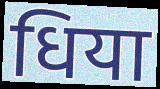
धिया